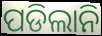
ପଡିଲାନି